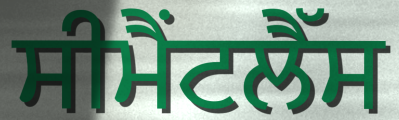
ਸੀਮੈਂਟਲੈੱਸ